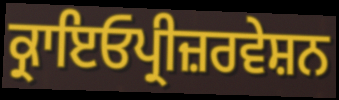
ਕ੍ਰਾਇਓਪ੍ਰੀਜ਼ਰਵੇਸ਼ਨ